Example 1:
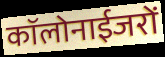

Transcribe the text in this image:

कॉलोनाईजरों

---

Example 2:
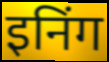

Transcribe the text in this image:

इनिंग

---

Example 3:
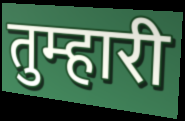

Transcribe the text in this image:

तुम्हारी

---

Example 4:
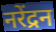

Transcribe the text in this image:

नरेंद्रन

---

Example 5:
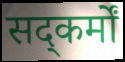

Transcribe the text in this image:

सद्कर्मों